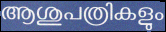
ആശുപത്രികളും